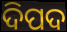
ଦିପଦ